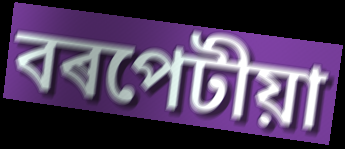
বৰপেটীয়া